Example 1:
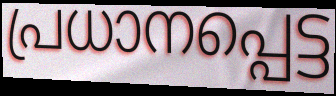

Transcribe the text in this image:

പ്രധാനപ്പെട്ട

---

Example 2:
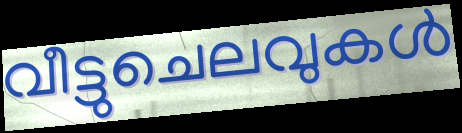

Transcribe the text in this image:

വീട്ടുചെലവുകൾ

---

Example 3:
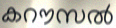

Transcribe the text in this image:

കറൗസൽ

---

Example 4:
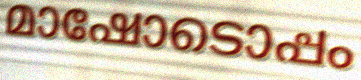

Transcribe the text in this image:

മാഷോടൊപ്പം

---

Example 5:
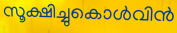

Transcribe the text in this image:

സൂക്ഷിച്ചുകൊൾവിൻ